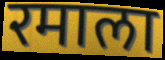
रमाला